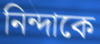
নিন্দাকে